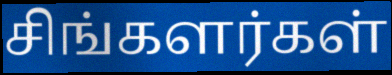
சிங்களர்கள்